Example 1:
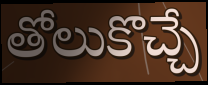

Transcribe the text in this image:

తోలుకొచ్చే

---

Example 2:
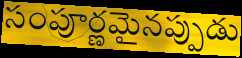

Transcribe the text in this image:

సంపూర్ణమైనప్పుడు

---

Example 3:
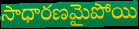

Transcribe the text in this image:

సాధారణమైపోయి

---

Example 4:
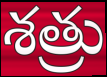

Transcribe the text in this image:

శత్రు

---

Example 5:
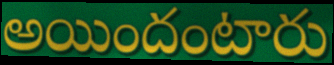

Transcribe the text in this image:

అయిందంటారు